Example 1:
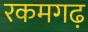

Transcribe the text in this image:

रकमगढ़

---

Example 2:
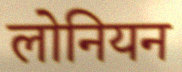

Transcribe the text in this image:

लोनियन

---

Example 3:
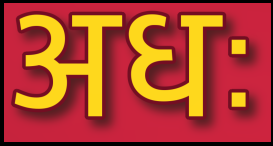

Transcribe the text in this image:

अधः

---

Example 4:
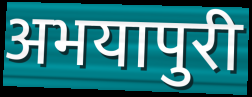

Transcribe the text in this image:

अभयापुरी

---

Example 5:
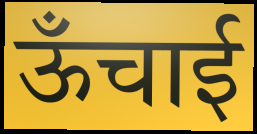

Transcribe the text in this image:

ऊँचाई